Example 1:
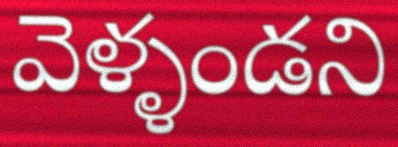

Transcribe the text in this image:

వెళ్ళండని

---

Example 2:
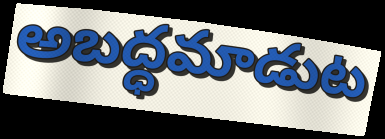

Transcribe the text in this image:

అబద్ధమాడుట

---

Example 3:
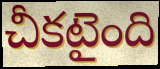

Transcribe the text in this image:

చీకటైంది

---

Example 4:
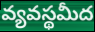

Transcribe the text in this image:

వ్యవస్థమీద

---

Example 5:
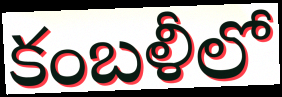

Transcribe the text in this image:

కంబళీలో